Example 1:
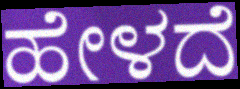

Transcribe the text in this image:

ಹೇಳದೆ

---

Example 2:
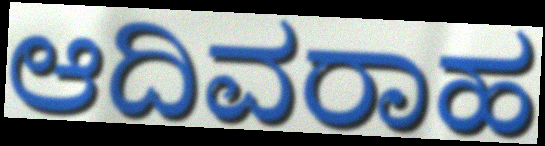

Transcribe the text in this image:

ಆದಿವರಾಹ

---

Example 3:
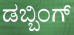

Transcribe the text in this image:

ಡಬ್ಬಿಂಗ್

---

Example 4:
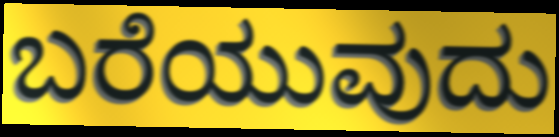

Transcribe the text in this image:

ಬರೆಯುವುದು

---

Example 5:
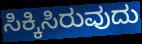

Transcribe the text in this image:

ಸಿಕ್ಕಿಸಿರುವುದು